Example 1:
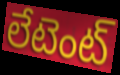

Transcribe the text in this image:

లేటెంట్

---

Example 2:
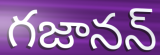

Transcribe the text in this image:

గజానన్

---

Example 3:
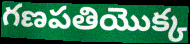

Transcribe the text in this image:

గణపతియొక్క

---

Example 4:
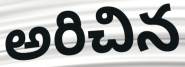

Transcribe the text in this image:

అరిచిన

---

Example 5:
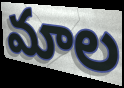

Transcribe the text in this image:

మాల